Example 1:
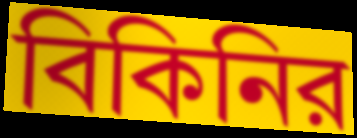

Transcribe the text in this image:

বিকিনির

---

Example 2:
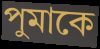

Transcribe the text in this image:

পুমাকে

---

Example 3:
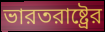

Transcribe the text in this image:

ভারতরাষ্ট্রের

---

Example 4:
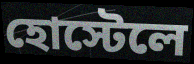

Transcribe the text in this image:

হোস্টেলে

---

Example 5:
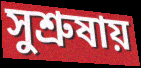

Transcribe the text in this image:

সুশ্রুষায়